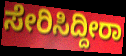
ಸೇರಿಸಿದ್ದೀರಾ